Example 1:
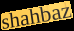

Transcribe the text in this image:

shahbaz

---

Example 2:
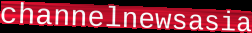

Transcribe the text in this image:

channelnewsasia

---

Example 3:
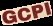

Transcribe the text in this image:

GCPI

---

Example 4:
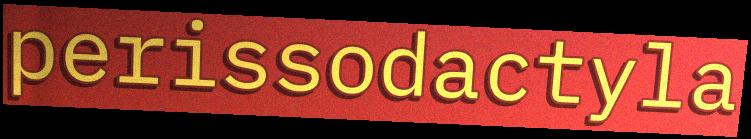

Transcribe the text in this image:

perissodactyla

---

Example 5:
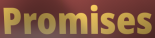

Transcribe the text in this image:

Promises